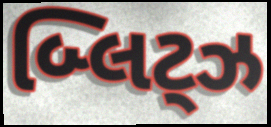
બ્લિટ્ઝ